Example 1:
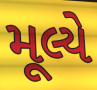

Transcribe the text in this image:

મૂલ્યે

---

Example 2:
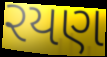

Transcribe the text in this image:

રયણ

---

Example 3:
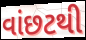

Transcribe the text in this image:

વાંછટથી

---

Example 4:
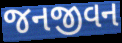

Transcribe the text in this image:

જનજીવન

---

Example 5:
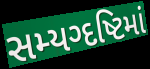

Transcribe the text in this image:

સમ્યગ્દષ્ટિમાં